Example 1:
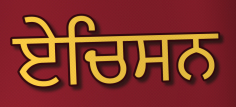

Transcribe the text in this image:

ਏਚਿਸਨ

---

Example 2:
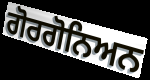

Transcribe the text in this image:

ਗੋਰਗੋਨਿਅਨ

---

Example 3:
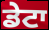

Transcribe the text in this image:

ਡੇਟਾ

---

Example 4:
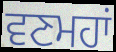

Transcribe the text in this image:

ਵਣਮਹਾਂ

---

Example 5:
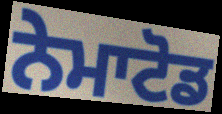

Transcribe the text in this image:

ਨੇਮਾਟੋਡ